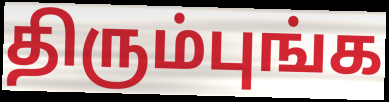
திரும்புங்க